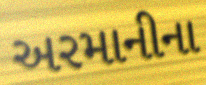
અરમાનીના